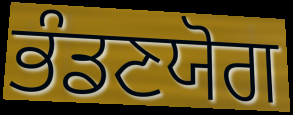
ਭੰਡਣਯੋਗ